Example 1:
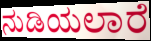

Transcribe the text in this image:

ನುಡಿಯಲಾರೆ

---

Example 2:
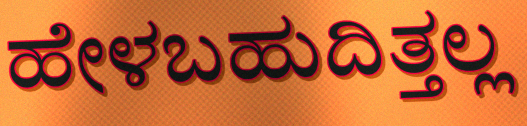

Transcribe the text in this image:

ಹೇಳಬಹುದಿತ್ತಲ್ಲ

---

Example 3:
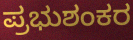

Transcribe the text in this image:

ಪ್ರಭುಶಂಕರ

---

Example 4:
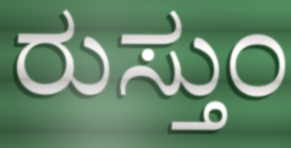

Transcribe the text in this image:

ರುಸ್ತುಂ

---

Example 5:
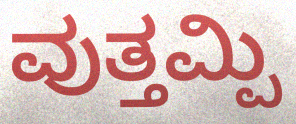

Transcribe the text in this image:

ವುತ್ತಮ್ಪಿ